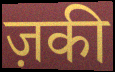
ज़की